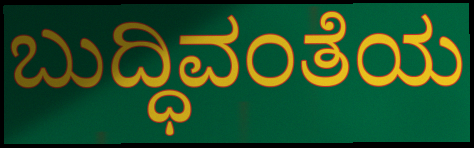
ಬುದ್ಧಿವಂತೆಯ